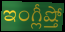
ఇంగ్లీష్తో